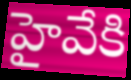
హైవేకి